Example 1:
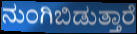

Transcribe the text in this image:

ನುಂಗಿಬಿಡುತ್ತಾರೆ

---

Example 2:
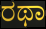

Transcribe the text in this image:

ರಥಾ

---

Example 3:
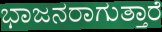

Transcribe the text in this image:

ಭಾಜನರಾಗುತ್ತಾರೆ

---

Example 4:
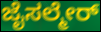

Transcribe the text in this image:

ಜೈಸಲ್ಮೇರ್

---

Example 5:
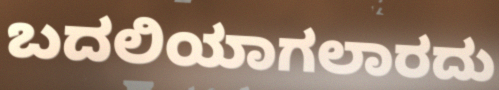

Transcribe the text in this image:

ಬದಲಿಯಾಗಲಾರದು